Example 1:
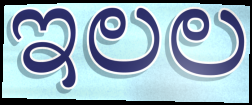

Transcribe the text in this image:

ಇಲಲ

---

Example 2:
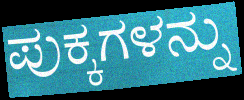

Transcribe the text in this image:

ಪುಕ್ಕಗಳನ್ನು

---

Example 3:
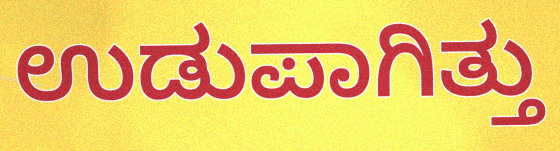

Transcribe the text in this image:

ಉಡುಪಾಗಿತ್ತು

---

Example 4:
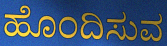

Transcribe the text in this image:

ಹೊಂದಿಸುವ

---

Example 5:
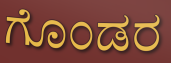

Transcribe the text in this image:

ಗೊಂಡರ